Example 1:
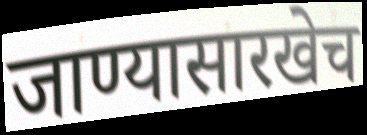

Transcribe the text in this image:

जाण्यासारखेच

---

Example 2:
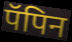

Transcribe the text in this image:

पॅपिन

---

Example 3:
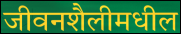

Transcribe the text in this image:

जीवनशैलीमधील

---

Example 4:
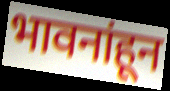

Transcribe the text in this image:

भावनांहून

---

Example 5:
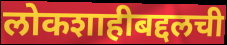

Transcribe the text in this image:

लोकशाहीबद्दलची